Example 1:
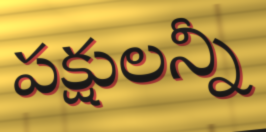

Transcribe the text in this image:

పక్షులన్నీ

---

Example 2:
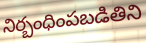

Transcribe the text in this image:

నిర్బంధింపబడితిని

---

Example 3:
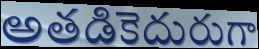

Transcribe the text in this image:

అతడికెదురుగా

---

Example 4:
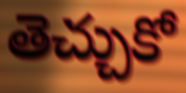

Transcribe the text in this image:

తెచ్చుకో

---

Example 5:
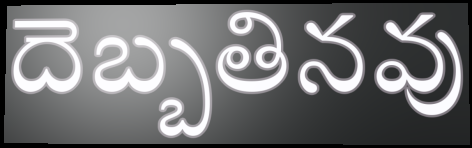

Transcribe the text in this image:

దెబ్బతినవు